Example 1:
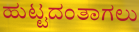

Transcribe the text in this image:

ಹುಟ್ಟದಂತಾಗಲು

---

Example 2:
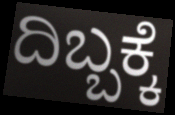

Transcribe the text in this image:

ದಿಬ್ಬಕ್ಕೆ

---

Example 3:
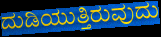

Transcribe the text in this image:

ದುಡಿಯುತ್ತಿರುವುದು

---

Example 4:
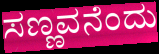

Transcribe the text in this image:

ಸಣ್ಣವನೆಂದು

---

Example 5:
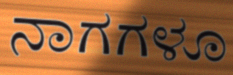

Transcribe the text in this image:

ನಾಗಗಳೂ